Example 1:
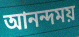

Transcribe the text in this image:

আনন্দময়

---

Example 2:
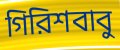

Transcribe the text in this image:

গিরিশবাবু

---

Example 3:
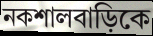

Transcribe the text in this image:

নকশালবাড়িকে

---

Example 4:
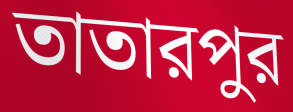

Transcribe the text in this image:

তাতারপুর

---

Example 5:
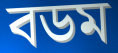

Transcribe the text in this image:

বডম